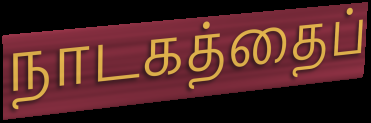
நாடகத்தைப்